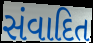
સંવાદિત